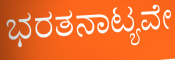
ಭರತನಾಟ್ಯವೇ